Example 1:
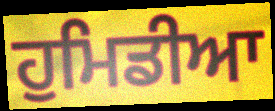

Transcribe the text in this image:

ਹੁਮਿਡੀਆ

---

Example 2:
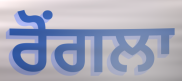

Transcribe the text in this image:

ਰੋਂਗਲਾ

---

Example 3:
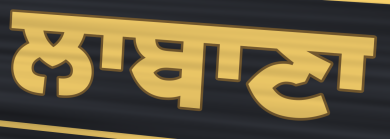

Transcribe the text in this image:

ਲਾਬਾਣਾ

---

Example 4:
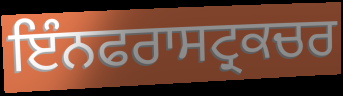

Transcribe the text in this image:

ਇੰਨਫਰਾਸਟ੍ਰਕਚਰ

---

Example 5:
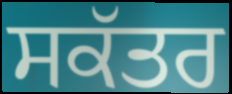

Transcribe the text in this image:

ਸਕੱਤਰ